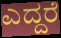
ಎದ್ದರೆ